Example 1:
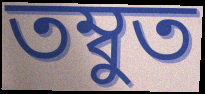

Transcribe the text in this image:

তম্বুত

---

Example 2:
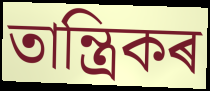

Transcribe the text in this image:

তান্ত্ৰিকৰ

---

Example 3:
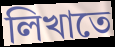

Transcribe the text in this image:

লিখাতে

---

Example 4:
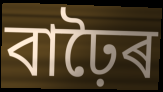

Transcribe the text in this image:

বাঢ়ৈৰ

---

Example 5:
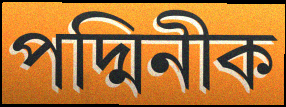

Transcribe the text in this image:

পদ্মিনীক